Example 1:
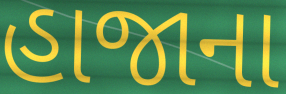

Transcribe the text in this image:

હાજાના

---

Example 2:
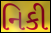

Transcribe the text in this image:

નિકી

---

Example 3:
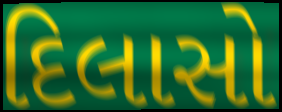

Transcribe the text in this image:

દિલાસો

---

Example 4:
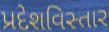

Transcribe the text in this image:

પ્રદેશવિસ્તાર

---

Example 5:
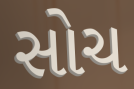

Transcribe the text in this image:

સોચ